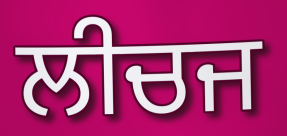
ਲੀਚਜ